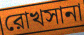
রোখসানা